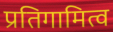
प्रतिगामित्व